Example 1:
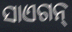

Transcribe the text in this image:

ସାଏଗନ୍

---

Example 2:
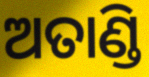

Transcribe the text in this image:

ଅତାଣ୍ଡି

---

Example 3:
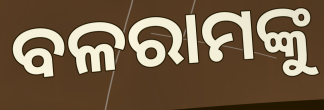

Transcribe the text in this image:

ବଳରାମଙ୍କୁ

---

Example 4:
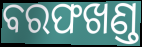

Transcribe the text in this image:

ବରଫଖଣ୍ଡ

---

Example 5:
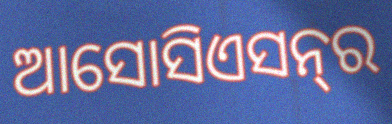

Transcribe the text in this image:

ଆସୋସିଏସନ୍‍ର